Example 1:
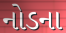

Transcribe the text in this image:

નોડના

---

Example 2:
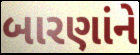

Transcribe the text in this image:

બારણાંને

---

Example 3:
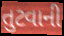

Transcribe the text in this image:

તુટવાની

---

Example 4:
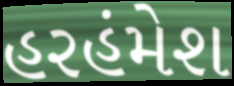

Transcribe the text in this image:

હરહંમેશ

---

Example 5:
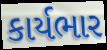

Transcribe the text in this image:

કાર્યભાર